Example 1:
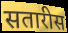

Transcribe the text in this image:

सतारीस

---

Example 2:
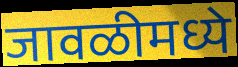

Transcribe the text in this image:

जावळीमध्ये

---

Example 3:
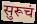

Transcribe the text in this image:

सुरूचं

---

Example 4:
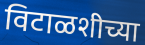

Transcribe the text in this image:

विटाळशीच्या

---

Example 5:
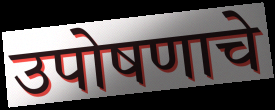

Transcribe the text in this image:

उपोषणाचे